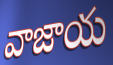
వాజాయ